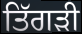
ਤਿੱਗੜੀ